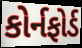
કોર્નફોર્ડ